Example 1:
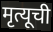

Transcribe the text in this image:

मृत्यूची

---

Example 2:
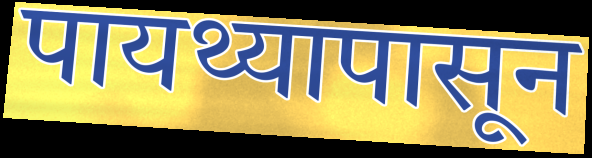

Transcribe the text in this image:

पायथ्यापासून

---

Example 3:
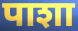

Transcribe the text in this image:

पाशा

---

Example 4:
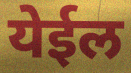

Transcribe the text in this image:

येईल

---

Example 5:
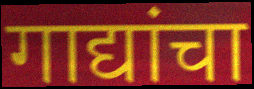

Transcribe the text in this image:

गाद्यांचा